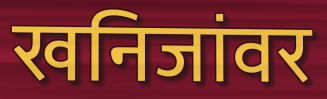
खनिजांवर